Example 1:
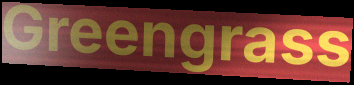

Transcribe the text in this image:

Greengrass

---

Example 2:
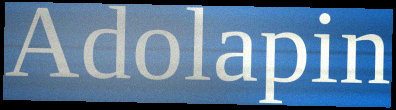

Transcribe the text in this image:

Adolapin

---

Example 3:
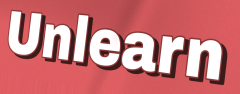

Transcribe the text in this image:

Unlearn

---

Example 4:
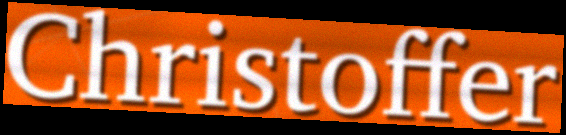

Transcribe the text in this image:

Christoffer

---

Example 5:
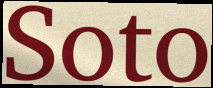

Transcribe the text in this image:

Soto